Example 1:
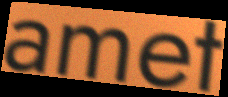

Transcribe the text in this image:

amet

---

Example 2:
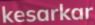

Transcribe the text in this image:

kesarkar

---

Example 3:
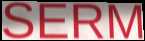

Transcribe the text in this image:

SERM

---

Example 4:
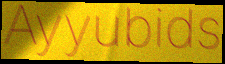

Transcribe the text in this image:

Ayyubids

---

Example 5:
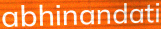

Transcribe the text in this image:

abhinandati